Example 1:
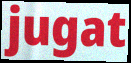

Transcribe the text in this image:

jugat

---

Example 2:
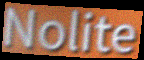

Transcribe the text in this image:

Nolite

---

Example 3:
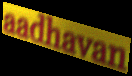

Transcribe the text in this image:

aadhavan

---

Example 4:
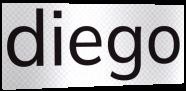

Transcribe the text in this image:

diego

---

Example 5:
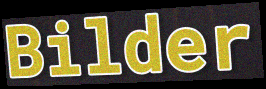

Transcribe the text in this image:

Bilder